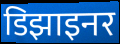
डिझाइनर